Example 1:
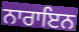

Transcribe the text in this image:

ਨਾਰਾਇਨ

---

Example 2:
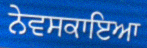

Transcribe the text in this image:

ਨੇਵਸਕਾਇਆ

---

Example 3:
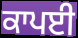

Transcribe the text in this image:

ਕਾਪਈ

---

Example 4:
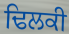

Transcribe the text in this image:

ਢਿਲਕੀ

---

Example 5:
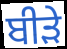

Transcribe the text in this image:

ਬੀੜੇ